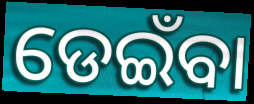
ଡେଇଁବା